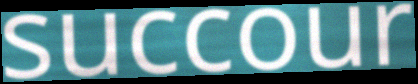
succour